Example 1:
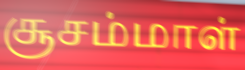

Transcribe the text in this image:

சூசம்மாள்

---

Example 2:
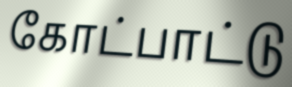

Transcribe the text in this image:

கோட்பாட்டு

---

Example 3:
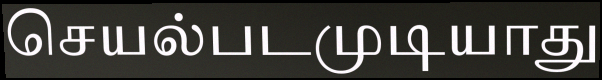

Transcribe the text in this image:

செயல்படமுடியாது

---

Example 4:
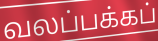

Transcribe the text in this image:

வலப்பக்கப்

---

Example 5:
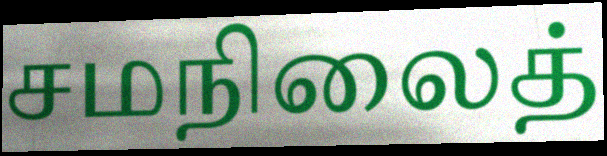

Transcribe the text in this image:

சமநிலைத்